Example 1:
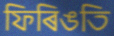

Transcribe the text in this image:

ফিৰিঙতি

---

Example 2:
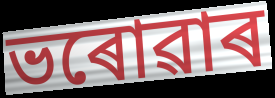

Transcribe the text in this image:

ভৰোৱাৰ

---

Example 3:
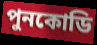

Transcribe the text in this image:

পুনকোডি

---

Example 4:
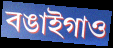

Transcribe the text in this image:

বঙাইগাও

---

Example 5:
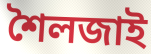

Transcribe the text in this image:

শৈলজাই